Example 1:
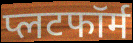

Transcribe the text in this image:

प्लटफॉर्म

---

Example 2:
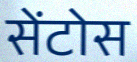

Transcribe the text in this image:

सेंटोस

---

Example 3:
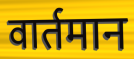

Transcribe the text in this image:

वार्तमान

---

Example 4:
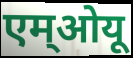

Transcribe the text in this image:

एम्ओयू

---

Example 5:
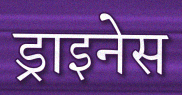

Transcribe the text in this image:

ड्राइनेस